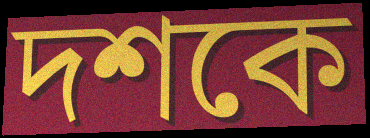
দশকে